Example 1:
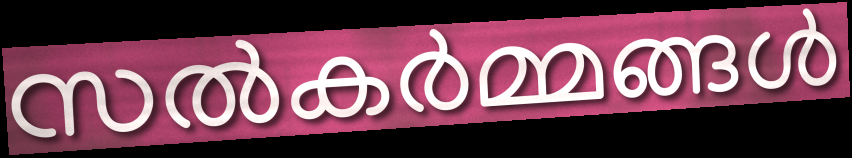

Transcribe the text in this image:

സൽകർമ്മങ്ങൾ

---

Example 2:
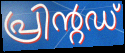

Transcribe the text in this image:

പ്രിന്റഡ്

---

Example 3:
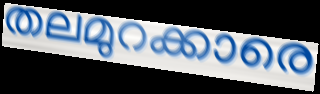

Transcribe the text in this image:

തലമുറക്കാരെ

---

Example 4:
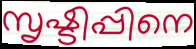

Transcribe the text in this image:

സൃഷ്ടിപ്പിനെ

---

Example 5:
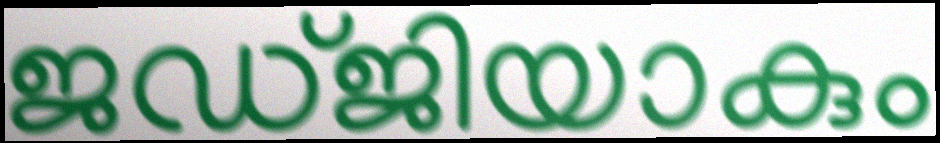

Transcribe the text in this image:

ജഡ്ജിയാകും